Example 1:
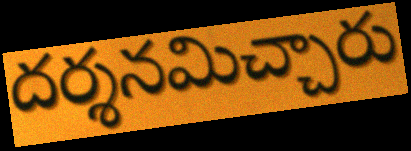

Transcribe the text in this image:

దర్శనమిచ్చారు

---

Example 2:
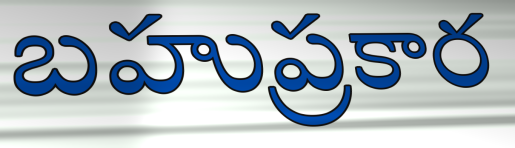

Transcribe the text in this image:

బహుప్రకార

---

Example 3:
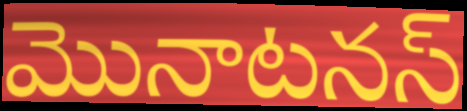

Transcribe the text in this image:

మొనాటనస్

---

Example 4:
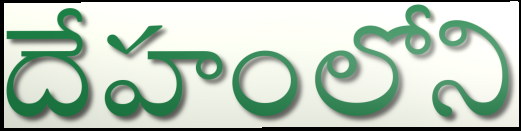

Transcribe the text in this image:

దేహంలోని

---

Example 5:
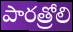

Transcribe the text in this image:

పారత్రోలి